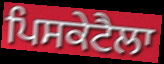
ਪਿਸਕੇਟੈਲਾ